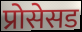
प्रोसेसड